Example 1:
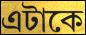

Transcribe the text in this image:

এটাকে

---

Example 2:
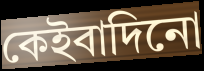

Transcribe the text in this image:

কেইবাদিনো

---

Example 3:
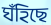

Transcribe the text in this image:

ঘঁহিছে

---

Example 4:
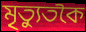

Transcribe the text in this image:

মৃত্যুতকৈ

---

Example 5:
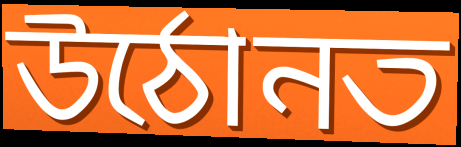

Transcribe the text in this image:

উঠোনত